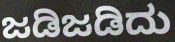
ಜಡಿಜಡಿದು